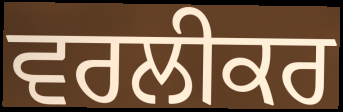
ਵਰਲੀਕਰ